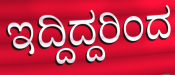
ಇದ್ದಿದ್ದರಿಂದ